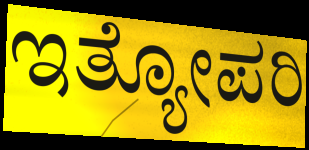
ಇತ್ಯೋಪರಿ